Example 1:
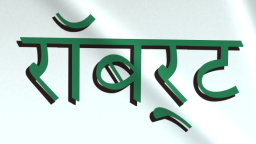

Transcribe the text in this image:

रॉबर्ट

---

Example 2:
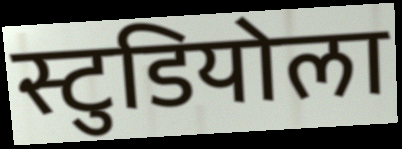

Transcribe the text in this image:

स्टुडियोला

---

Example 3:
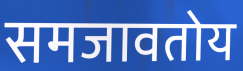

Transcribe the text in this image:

समजावतोय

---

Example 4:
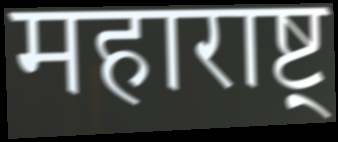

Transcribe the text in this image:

महाराष्ट्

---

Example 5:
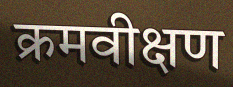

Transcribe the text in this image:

क्रमवीक्षण